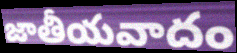
జాతీయవాదం